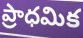
ప్రాధమిక